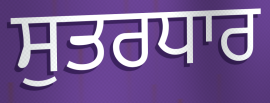
ਸੁਤਰਧਾਰ